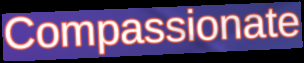
Compassionate